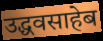
उद्धवसाहेब